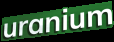
uranium